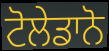
ਟੋਲੇਡਾਨੋ